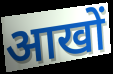
आखों